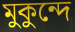
মুকুন্দে